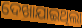
ଦେଖାଯାଇଥିଲା